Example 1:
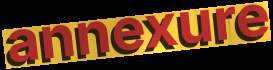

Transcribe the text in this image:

annexure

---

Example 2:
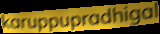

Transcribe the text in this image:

karuppupradhigal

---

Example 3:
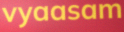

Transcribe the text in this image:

vyaasam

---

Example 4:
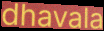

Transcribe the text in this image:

dhavala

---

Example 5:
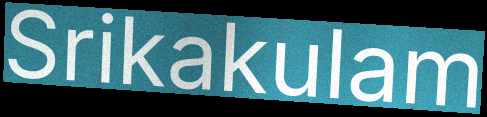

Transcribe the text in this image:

Srikakulam